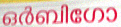
ഒർബിഗോ